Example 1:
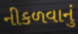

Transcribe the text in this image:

નીકળવાનું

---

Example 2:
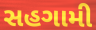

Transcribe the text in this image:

સહગામી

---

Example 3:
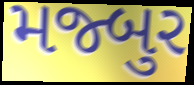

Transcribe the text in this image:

મજ્બુર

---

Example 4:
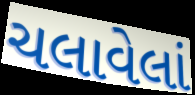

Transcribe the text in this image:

ચલાવેલાં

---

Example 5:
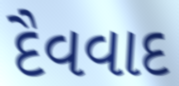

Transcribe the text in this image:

દૈવવાદ